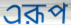
এরূপ